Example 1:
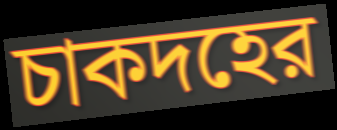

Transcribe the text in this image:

চাকদহের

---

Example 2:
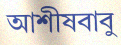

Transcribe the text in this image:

আশীষবাবু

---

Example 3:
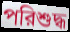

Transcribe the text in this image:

পরিশুদ্ধ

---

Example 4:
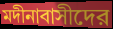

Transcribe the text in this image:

মদীনাবাসীদের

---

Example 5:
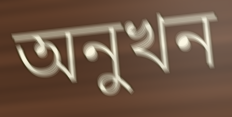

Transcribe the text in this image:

অনুখন